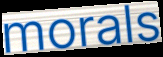
morals